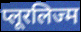
प्लूरलिज्म